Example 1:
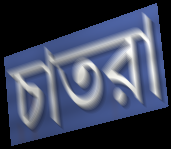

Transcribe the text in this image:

চাতরা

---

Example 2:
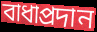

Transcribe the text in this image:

বাধাপ্রদান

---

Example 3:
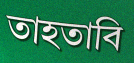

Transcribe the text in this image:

তাহতাবি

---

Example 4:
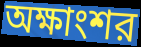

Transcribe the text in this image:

অক্ষাংশর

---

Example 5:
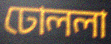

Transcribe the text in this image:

ঢোললা